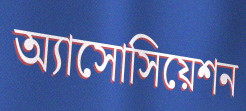
অ্যাসোসিয়েশন